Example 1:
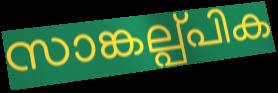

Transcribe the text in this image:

സാങ്കല്പ്പിക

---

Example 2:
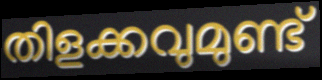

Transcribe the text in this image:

തിളക്കവുമുണ്ട്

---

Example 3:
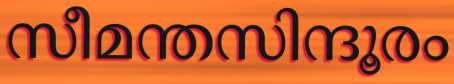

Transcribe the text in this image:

സീമന്തസിന്ദൂരം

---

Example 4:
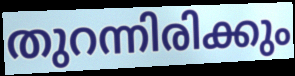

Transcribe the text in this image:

തുറന്നിരിക്കും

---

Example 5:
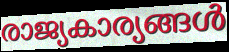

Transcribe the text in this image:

രാജ്യകാര്യങ്ങൾ